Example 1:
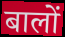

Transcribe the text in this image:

बालों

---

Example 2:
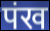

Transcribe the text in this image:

पंख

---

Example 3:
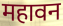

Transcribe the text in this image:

महावन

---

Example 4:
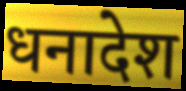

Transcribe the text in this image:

धनादेश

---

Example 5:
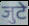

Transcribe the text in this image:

जुटे